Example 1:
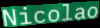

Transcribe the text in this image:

Nicolao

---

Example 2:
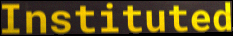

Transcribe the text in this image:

Instituted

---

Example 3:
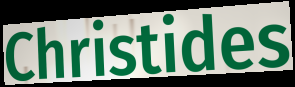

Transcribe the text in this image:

Christides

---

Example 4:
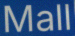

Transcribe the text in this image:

Mall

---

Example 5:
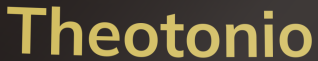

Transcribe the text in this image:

Theotonio